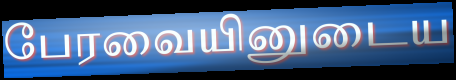
பேரவையினுடைய